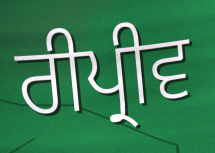
ਰੀਪ੍ਰੀਵ